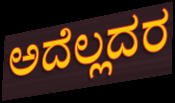
ಅದೆಲ್ಲದರ